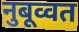
नुबूव्वत